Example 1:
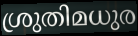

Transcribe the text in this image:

ശ്രുതിമധുര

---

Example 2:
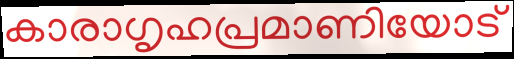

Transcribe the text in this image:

കാരാഗൃഹപ്രമാണിയോട്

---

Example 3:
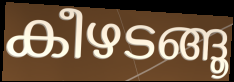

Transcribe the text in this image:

കീഴടങ്ങൂ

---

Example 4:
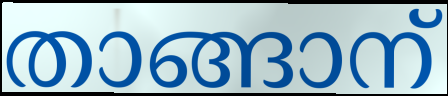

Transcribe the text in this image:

താങ്ങാന്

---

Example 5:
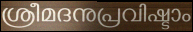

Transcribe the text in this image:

ശ്രീമദനുപ്രവിഷ്ടാം